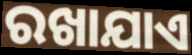
ରଖାଯାଏ